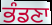
ਭੰਡਣਾ